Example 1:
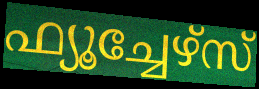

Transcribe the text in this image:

ഫ്യൂച്ചേഴ്സ്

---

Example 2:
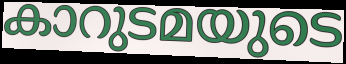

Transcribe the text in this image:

കാറുടമയുടെ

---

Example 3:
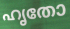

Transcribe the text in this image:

ഹൃതോ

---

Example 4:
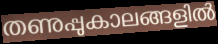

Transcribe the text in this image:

തണുപ്പുകാലങ്ങളിൽ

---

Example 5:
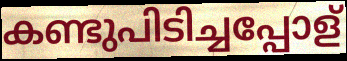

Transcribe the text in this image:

കണ്ടുപിടിച്ചപ്പോള്